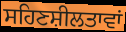
ਸਹਿਣਸ਼ੀਲਤਾਵਾਂ